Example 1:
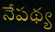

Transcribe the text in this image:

నేపథ్య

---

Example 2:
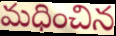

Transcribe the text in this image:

మధించిన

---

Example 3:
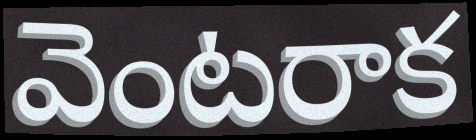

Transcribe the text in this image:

వెంటరాక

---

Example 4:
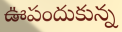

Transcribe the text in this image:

ఊపందుకున్న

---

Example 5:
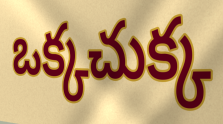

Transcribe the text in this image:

ఒక్కచుక్క